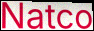
Natco